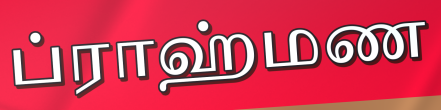
ப்ராஹ்மண